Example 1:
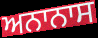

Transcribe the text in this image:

ਅਨਾਨਾਸ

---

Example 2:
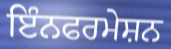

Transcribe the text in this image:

ਇੰਨਫਰਮੇਸ਼ਨ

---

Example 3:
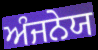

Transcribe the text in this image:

ਅੰਜਨੇਯ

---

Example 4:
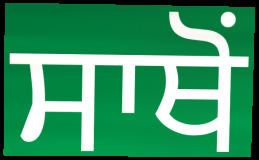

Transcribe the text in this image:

ਸਾਥੋਂ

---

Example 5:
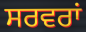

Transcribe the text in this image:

ਸਰਵਰਾਂ